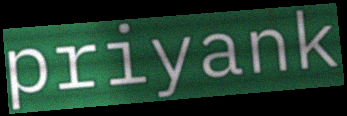
priyank